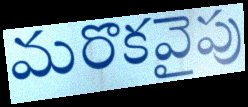
మరొకవైపు